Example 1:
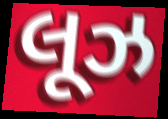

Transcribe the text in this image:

લૂઝ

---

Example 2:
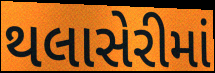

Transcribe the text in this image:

થલાસેરીમાં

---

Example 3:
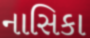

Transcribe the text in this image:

નાસિકા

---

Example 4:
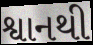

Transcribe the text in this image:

શ્વાનથી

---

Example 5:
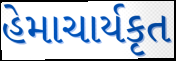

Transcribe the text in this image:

હેમાચાર્યકૃત